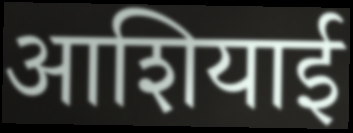
आशियाई